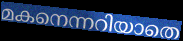
മകനെന്നറിയാതെ